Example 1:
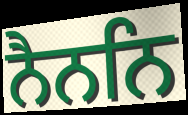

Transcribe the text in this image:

ਨੈਨਨਿ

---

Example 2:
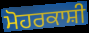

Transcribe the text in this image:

ਮੋਹਰਕਾਸ਼ੀ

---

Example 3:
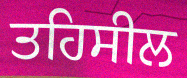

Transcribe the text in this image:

ਤਹਿਸੀਲ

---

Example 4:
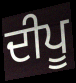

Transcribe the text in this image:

ਦੀਪੂ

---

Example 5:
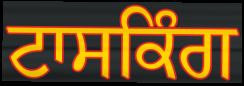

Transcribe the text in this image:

ਟਾਸਕਿੰਗ